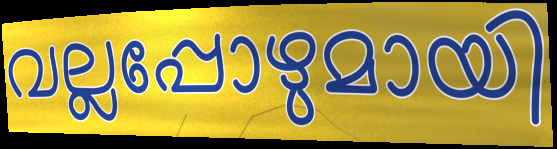
വല്ലപ്പോഴുമായി